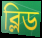
ব্লিড